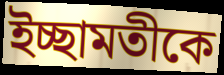
ইচ্ছামতীকে